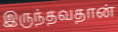
இருந்தவதான்